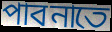
পাবনাতে